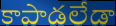
కాపాడలేడా